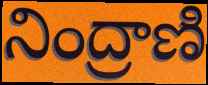
నింద్రాణి